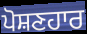
ਪੋਸ਼ਣਹਾਰ